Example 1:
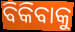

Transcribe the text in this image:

ବିକିବାକୁ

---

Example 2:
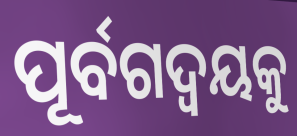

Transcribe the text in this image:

ପୂର୍ବଗଦ୍ଵୟକୁ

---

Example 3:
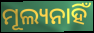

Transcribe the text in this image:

ମୂଲ୍ୟନାହିଁ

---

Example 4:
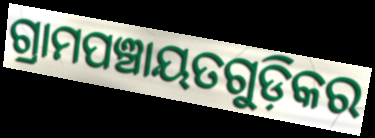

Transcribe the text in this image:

ଗ୍ରାମପଞ୍ଚାୟତଗୁଡ଼ିକର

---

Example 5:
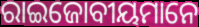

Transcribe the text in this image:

ରାଇଜୋବୀୟମାନେ